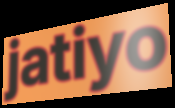
jatiyo